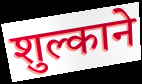
शुल्काने